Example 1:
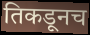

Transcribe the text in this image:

तिकडूनच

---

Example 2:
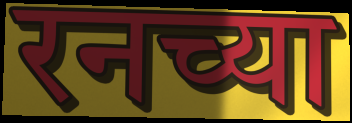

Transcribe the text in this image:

रनच्या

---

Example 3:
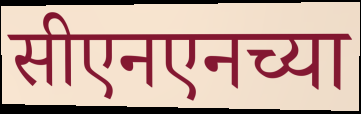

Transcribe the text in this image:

सीएनएनच्या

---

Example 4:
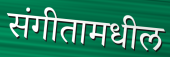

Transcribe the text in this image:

संगीतामधील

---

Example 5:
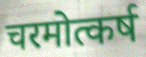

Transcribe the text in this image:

चरमोत्कर्ष